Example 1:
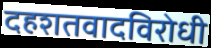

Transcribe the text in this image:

दहशतवादविरोधी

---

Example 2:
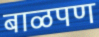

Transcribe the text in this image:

बाळपण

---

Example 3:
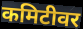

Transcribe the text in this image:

कमिटीवर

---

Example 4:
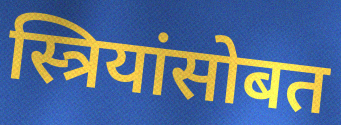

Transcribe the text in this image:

स्त्रियांसोबत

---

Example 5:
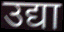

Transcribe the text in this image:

उद्या